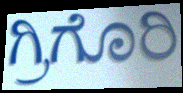
ಗ್ರಿಗೊರಿ